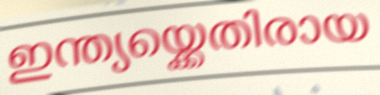
ഇന്ത്യയ്ക്കെതിരായ